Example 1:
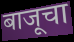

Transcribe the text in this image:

बाजूचा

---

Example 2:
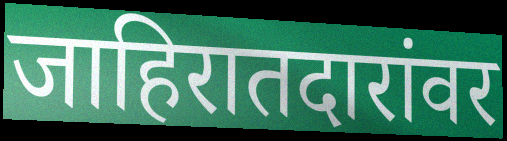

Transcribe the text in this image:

जाहिरातदारांवर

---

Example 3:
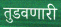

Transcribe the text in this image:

तुडवणारी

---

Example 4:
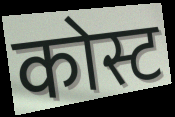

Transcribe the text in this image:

कोस्ट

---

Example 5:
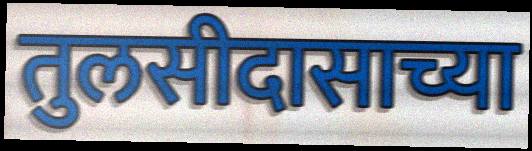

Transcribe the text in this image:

तुलसीदासाच्या